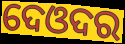
ଦେଓଦର